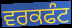
ਵਰਕਫੰਟ